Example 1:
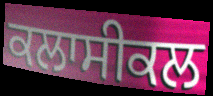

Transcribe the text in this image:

ਕਲਾਸੀਕਲ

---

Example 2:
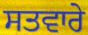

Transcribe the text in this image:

ਸਤਵਾਰੇ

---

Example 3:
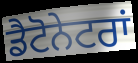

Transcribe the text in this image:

ਡੈਟੋਨੇਟਰਾਂ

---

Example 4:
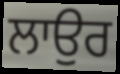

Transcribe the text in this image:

ਲਾਉਰ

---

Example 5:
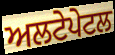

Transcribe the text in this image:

ਅਲਟੇਪੇਟਲ